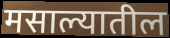
मसाल्यातील